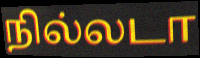
நில்லடா